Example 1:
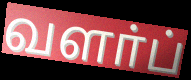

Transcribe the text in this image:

வளர்ப்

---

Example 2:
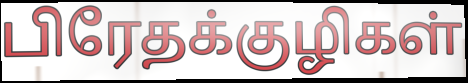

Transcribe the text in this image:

பிரேதக்குழிகள்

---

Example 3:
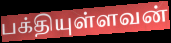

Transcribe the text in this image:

பக்தியுள்ளவன்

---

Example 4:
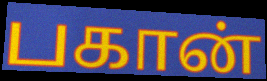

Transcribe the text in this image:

பகான்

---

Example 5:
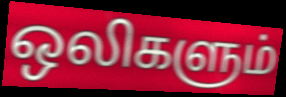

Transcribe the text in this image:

ஒலிகளும்